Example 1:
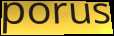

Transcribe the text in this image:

porus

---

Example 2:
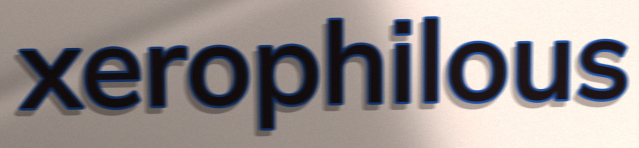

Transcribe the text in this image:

xerophilous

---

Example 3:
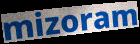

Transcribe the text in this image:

mizoram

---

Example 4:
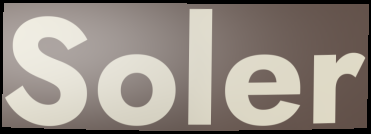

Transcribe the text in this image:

Soler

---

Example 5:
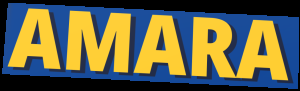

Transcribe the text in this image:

AMARA